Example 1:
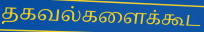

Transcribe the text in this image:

தகவல்களைக்கூட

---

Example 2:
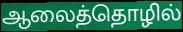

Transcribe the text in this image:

ஆலைத்தொழில்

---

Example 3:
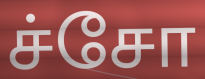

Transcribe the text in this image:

ச்சோ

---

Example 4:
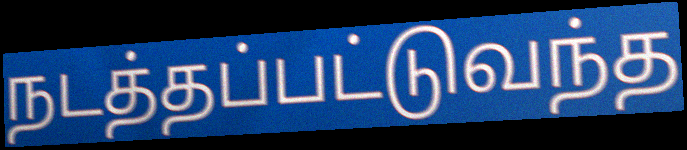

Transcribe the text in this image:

நடத்தப்பட்டுவந்த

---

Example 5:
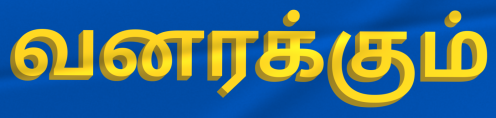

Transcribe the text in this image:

வனரக்கும்